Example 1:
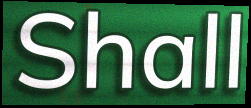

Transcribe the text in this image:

Shall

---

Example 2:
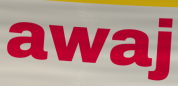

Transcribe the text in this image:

awaj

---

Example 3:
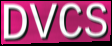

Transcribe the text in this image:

DVCS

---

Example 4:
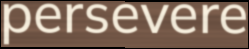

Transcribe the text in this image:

persevere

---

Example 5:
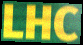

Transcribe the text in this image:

LHC